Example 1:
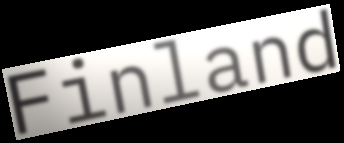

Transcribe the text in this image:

Finland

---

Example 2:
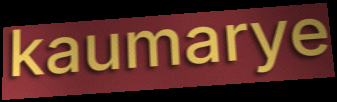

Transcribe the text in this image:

kaumarye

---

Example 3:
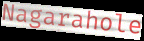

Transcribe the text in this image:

Nagarahole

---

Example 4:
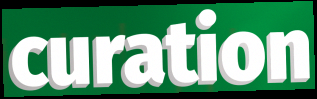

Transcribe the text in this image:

curation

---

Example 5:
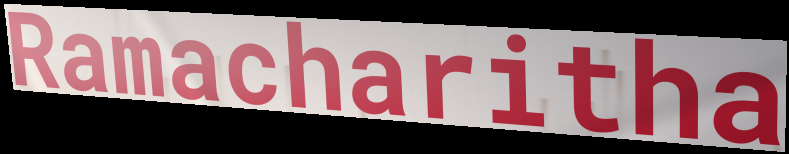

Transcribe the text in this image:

Ramacharitha